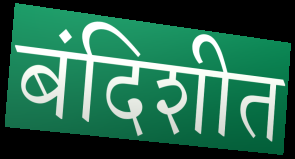
बंदिशीत